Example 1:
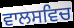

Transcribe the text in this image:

ਵਾਲਸਵਿਚ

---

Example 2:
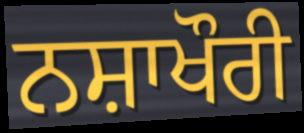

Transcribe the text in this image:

ਨਸ਼ਾਖੌਰੀ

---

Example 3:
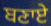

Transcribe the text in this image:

ਬਣਾਏ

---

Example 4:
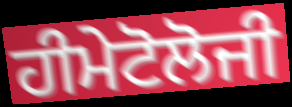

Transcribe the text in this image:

ਹੀਮੇਟੋਲੋਜੀ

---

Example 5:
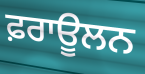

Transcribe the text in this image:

ਫ਼ਰਾਊਲਨ